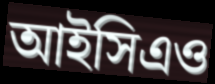
আইসিএও